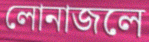
লোনাজলে